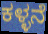
ಕಳ್ಳನೆ